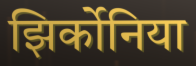
झिर्कोनिया